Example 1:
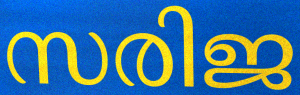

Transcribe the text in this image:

സരിജ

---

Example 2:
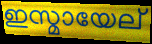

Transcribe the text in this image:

ഇസ്മായേല്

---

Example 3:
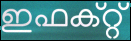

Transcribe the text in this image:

ഇഫക്റ്റ്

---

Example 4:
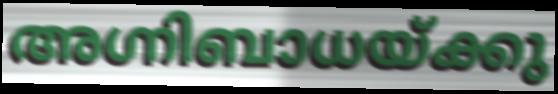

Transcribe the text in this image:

അഗ്നിബാധയ്ക്കു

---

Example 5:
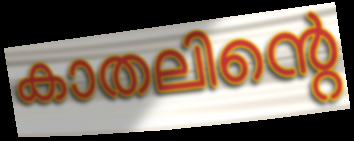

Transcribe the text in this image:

കാതലിന്റെ